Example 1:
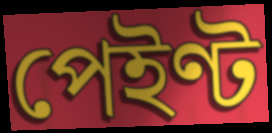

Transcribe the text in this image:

পেইণ্ট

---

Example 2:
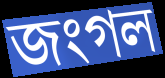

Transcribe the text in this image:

জংগল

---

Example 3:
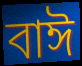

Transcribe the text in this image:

বাঈ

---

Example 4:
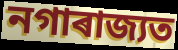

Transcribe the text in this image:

নগাৰাজ্যত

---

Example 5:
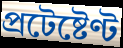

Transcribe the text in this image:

প্ৰটেষ্টেণ্ট